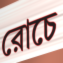
রোচে